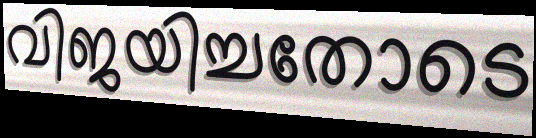
വിജയിച്ചതോടെ